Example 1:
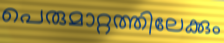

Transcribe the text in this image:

പെരുമാറ്റത്തിലേക്കും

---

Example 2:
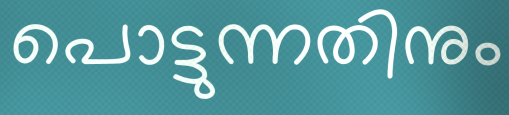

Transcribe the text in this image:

പൊട്ടുന്നതിനും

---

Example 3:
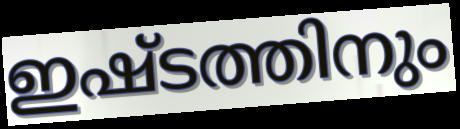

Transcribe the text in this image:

ഇഷ്ടത്തിനും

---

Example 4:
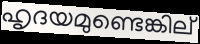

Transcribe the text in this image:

ഹൃദയമുണ്ടെങ്കില്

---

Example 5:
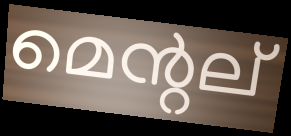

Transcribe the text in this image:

മെന്റല്